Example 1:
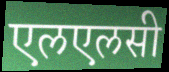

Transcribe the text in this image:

एलएलसी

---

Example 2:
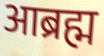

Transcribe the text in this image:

आब्रह्म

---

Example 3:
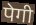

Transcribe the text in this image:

पेगी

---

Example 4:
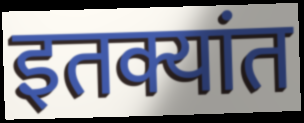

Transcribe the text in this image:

इतक्यांत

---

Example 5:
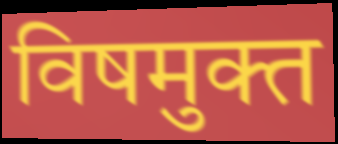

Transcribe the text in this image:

विषमुक्त